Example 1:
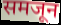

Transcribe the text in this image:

समजून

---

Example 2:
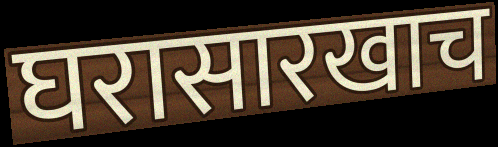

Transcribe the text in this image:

घरासारखाच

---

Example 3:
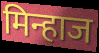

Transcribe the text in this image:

मिन्हाज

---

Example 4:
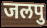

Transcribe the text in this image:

जलपु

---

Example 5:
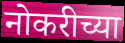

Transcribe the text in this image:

नोकरीच्या